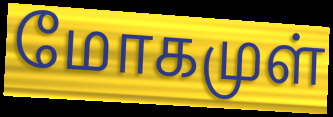
மோகமுள்